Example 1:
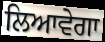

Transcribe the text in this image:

ਲਿਆਵੇਗਾ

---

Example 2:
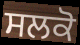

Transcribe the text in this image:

ਸਲਕੋ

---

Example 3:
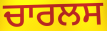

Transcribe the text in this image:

ਚਾਰਲਸ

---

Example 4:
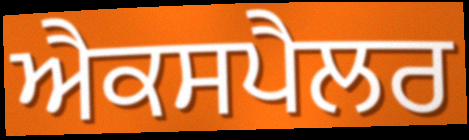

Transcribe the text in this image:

ਐਕਸਪੈਲਰ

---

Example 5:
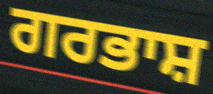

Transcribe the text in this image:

ਗਰਭਾਸ਼